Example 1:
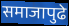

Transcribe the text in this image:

समाजापुढे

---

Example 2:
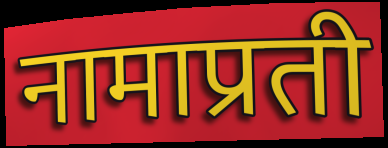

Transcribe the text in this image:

नामाप्रती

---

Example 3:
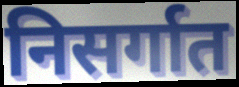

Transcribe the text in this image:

निसर्गात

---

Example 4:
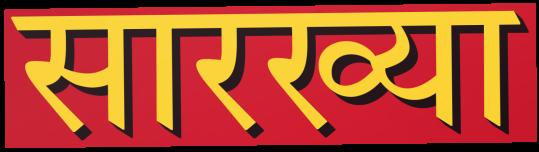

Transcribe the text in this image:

सारख्या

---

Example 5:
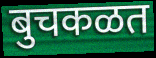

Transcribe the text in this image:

बुचकळत